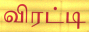
விரட்டி